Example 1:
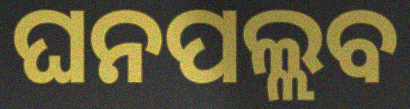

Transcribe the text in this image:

ଘନପଲ୍ଲବ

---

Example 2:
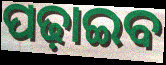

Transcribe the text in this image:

ପଢ଼ାଇବ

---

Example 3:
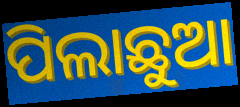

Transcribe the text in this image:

ପିଲାଛୁଆ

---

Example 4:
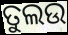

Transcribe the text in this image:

ତୁଲଉ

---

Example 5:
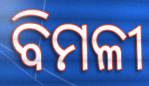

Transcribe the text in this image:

ବିମଳୀ